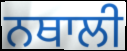
ਨਥਾਲੀ